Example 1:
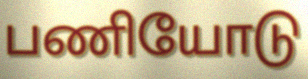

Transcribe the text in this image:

பணியோடு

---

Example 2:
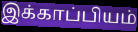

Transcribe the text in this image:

இக்காப்பியம்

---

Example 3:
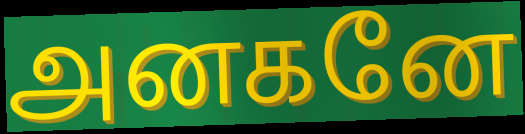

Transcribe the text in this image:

அனகனே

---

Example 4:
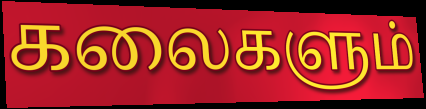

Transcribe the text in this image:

கலைகளும்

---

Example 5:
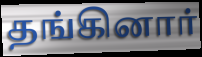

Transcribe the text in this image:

தங்கினார்